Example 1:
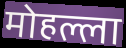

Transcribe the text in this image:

मोहल्ला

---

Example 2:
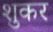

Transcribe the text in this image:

शुकर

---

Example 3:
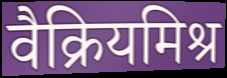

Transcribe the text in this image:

वैक्रियमिश्र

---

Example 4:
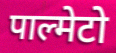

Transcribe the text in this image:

पाल्मेटो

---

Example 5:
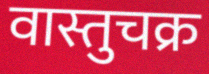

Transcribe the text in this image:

वास्तुचक्र